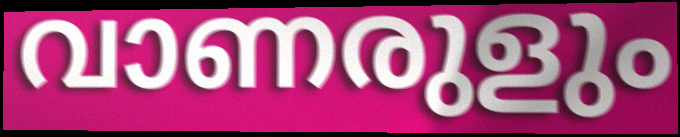
വാണരുളും